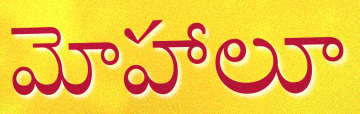
మోహాలూ